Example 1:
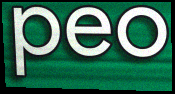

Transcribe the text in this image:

peo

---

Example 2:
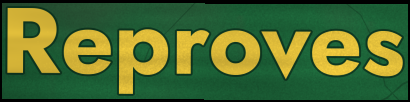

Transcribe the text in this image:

Reproves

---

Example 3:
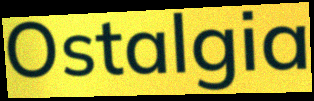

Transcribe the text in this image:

Ostalgia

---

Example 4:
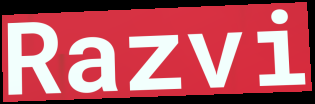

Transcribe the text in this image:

Razvi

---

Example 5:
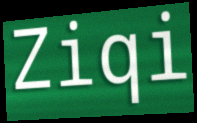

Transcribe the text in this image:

Ziqi